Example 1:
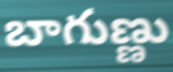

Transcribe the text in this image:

బాగుణ్ణు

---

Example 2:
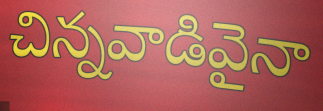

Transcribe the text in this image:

చిన్నవాడివైనా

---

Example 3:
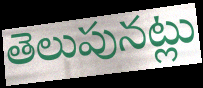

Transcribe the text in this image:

తెలుపునట్లు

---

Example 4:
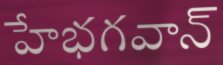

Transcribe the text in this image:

హేభగవాన్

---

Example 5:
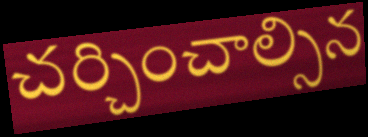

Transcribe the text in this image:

చర్చించాల్సిన